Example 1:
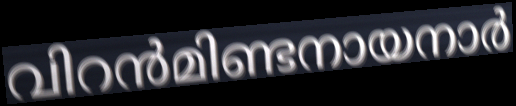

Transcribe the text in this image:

വിറൻമിണ്ടനായനാർ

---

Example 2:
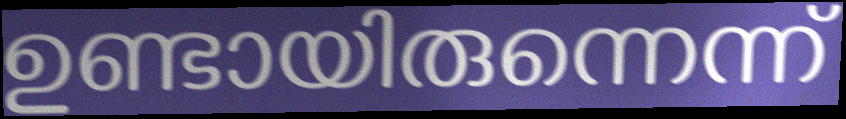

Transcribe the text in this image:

ഉണ്ടായിരുന്നെന്ന്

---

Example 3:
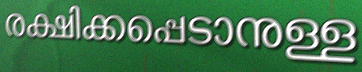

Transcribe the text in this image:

രക്ഷിക്കപ്പെടാനുള്ള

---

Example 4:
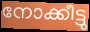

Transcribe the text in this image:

നോക്കീട്ടു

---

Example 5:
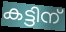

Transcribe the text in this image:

കട്ടിന്